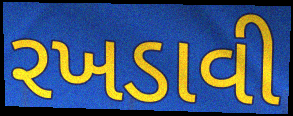
રખડાવી